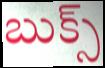
బుక్స్